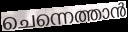
ചെന്നെത്താൻ